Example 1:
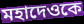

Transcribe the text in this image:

মহাদেওকে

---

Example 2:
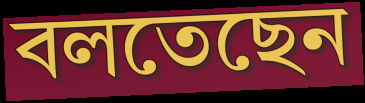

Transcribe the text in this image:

বলতেছেন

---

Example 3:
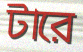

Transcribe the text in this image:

টারে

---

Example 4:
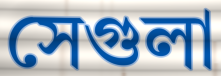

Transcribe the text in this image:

সেগুলা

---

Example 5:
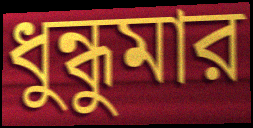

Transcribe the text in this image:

ধুন্ধুমার